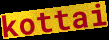
kottai